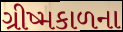
ગ્રીષ્મકાળના